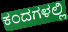
ಕಂದಗಳಲ್ಲಿ